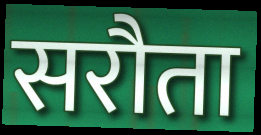
सरौता